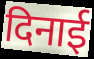
दिनाई